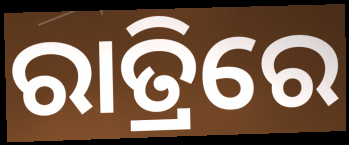
ରାତ୍ରିରେ